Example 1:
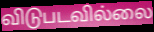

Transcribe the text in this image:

விடுபடவில்லை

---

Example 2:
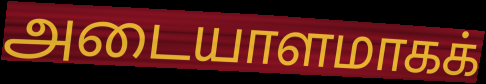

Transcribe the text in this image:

அடையாளமாகக்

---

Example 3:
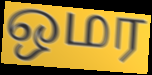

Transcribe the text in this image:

ஒமர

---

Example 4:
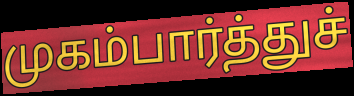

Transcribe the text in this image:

முகம்பார்த்துச்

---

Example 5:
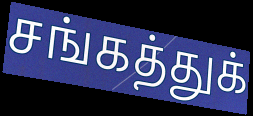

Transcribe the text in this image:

சங்கத்துக்